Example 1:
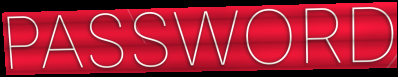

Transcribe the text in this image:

PASSWORD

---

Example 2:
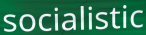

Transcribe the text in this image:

socialistic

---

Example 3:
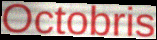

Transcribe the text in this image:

Octobris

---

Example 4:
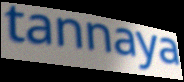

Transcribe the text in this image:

tannaya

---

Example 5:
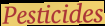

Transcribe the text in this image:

Pesticides